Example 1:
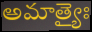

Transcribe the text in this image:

అమాత్యైః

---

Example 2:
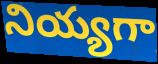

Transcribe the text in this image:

నియ్యగా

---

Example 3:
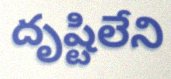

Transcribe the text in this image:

దృష్టిలేని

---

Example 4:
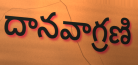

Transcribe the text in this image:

దానవాగ్రణి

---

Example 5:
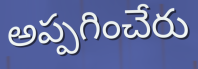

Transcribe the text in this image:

అప్పగించేరు